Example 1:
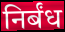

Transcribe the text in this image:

निर्बंध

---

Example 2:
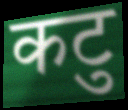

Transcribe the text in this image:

कटु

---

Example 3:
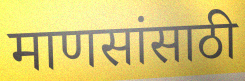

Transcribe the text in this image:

माणसांसाठी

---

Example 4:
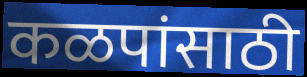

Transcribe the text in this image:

कळपांसाठी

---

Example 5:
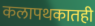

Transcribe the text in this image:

कलापथकातही